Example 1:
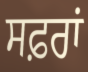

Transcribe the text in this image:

ਸਫ਼ਰਾਂ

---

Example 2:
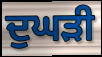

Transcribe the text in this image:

ਦੁਘੜੀ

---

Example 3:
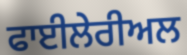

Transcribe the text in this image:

ਫਾਈਲੇਰੀਅਲ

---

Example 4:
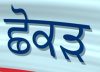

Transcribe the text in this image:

ਛੋਕੜ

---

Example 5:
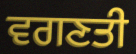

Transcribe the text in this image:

ਵਗਣਤੀ